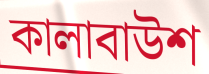
কালাবাউশ